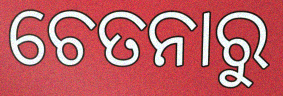
ଚେତନାରୁ